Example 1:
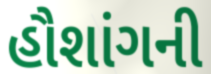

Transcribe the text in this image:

હૌશાંગની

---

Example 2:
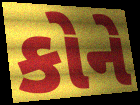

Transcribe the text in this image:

કોને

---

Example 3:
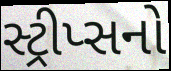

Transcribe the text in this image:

સ્ટ્રીપ્સનો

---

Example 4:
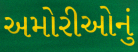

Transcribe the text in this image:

અમોરીઓનું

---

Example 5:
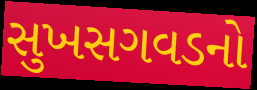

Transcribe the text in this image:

સુખસગવડનો